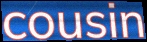
cousin